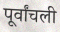
पूर्वांचली